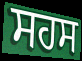
ਸਹਸ